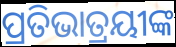
ପ୍ରତିଭାତ୍ରୟୀଙ୍କ